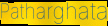
Patharghata